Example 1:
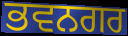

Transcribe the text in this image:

ਭਵਨਗਰ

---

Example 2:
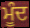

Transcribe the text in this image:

ਮੂੰਦ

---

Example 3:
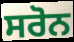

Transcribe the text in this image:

ਸਰੋਨ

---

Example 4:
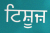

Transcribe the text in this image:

ਟਿਸ਼ੂਜ਼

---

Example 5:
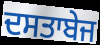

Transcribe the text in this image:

ਦਸਤਾਬੇਜ